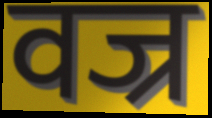
वज्र